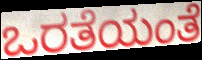
ಒರತೆಯಂತೆ